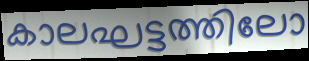
കാലഘട്ടത്തിലോ